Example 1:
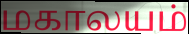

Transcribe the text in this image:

மகாலயம்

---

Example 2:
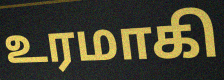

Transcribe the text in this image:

உரமாகி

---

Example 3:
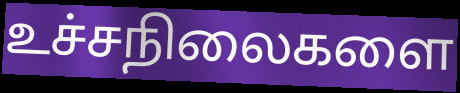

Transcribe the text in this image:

உச்சநிலைகளை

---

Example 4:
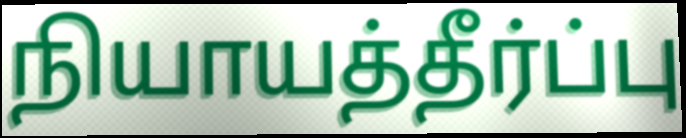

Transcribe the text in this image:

நியாயத்தீர்ப்பு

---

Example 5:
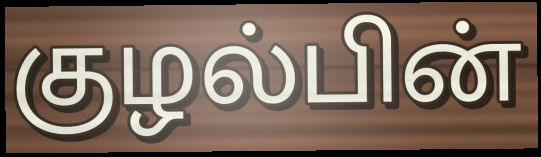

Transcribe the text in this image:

குழல்பின்